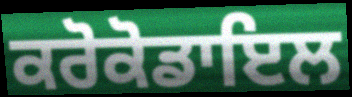
ਕਰੋਕੋਡਾਇਲ